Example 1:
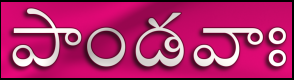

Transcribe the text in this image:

పాండవాః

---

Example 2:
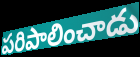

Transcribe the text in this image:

పరిపాలించాడు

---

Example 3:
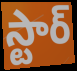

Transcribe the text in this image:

స్టార్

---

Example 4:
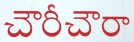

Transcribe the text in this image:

చౌరీచౌరా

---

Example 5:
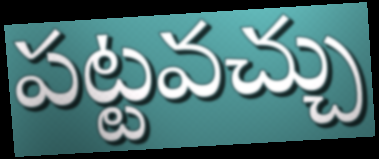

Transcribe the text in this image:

పట్టవచ్చు